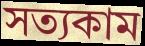
সত্যকাম